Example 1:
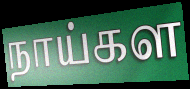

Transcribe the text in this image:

நாய்கள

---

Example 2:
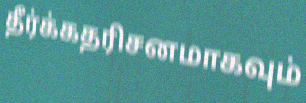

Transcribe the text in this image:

தீர்க்கதரிசனமாகவும்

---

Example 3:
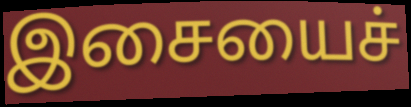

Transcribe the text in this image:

இசையைச்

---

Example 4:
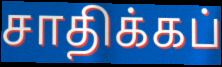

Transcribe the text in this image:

சாதிக்கப்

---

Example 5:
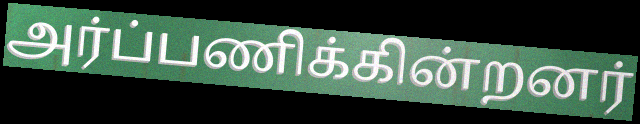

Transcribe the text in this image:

அர்ப்பணிக்கின்றனர்